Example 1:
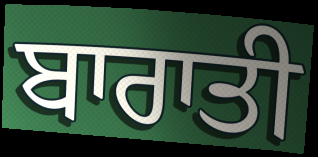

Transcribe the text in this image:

ਬਾਰਾਤੀ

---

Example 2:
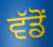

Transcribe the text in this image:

ਵੱਡੋਂ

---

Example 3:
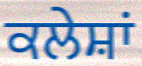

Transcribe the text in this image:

ਕਲੇਸ਼ਾਂ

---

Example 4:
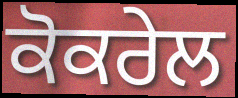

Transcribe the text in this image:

ਕੋਕਰੇਲ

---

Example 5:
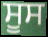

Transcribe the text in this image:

ਸੂਸ